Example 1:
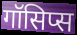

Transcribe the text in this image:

गॉसिप्स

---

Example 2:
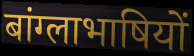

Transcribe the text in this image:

बांग्लाभाषियों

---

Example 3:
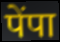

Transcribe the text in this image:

पेंपा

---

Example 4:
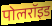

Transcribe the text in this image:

पोलरॉइड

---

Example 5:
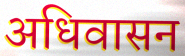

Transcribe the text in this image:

अधिवासन